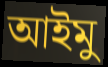
আইমু